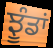
ਝੂੰਡਾਂ